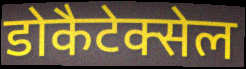
डोकैटेक्सेल